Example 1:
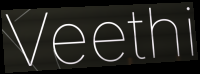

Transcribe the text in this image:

Veethi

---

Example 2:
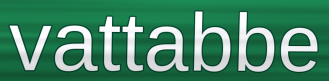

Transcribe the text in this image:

vattabbe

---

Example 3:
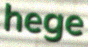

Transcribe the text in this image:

hege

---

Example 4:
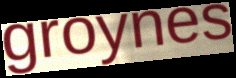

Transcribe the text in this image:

groynes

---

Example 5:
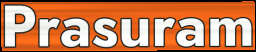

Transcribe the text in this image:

Prasuram